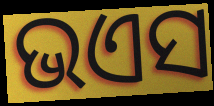
ଭଏସ